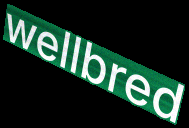
wellbred